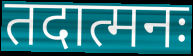
तदात्मनः